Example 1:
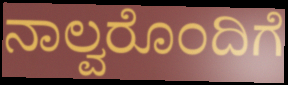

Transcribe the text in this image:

ನಾಲ್ವರೊಂದಿಗೆ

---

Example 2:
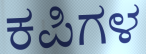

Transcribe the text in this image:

ಕಪಿಗಳ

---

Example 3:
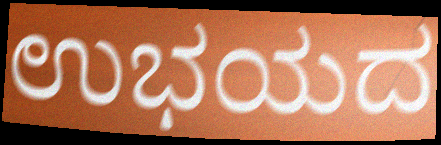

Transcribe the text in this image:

ಉಭಯದ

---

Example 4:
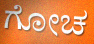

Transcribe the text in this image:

ಗೋಚ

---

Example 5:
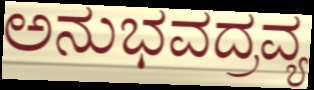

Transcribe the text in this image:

ಅನುಭವದ್ರವ್ಯ